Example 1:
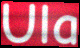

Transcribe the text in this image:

Ula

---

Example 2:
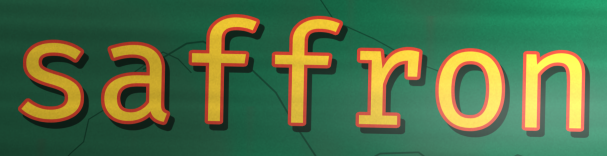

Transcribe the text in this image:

saffron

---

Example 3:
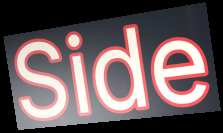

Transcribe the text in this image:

Side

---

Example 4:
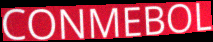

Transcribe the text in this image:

CONMEBOL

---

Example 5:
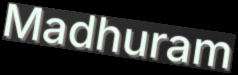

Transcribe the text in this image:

Madhuram